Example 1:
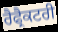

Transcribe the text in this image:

ਰੈਫ੍ਰੈਕਟਰੀ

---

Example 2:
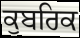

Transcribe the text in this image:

ਕੁਬਰਿਕ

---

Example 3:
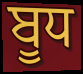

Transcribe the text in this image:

ਬੂਧ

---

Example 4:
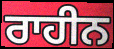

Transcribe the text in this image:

ਰਾਹੀਨ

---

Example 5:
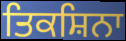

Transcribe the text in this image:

ਤਿਕਸ਼ਿਨਾ